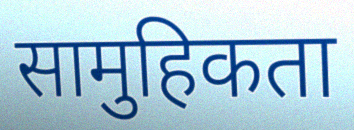
सामुहिकता